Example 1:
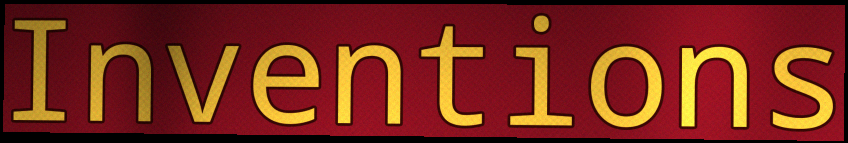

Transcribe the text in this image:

Inventions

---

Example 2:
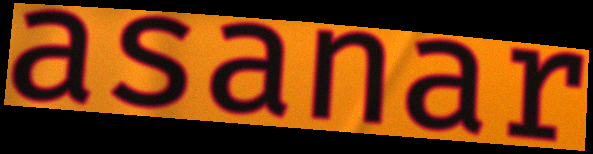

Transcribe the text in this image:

asanar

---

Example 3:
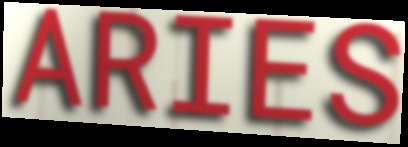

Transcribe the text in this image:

ARIES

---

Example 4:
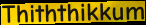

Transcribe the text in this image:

Thiththikkum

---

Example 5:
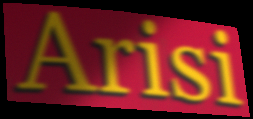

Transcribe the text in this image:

Arisi